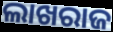
ଲାଖରାଜ